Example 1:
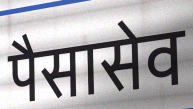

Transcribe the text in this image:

पैसासेव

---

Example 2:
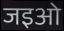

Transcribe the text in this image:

जइओ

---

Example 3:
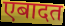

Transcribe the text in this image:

एबादत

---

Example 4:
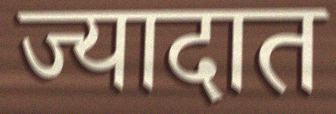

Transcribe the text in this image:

ज्यादात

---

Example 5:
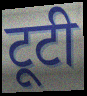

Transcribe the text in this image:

टूटी